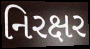
નિરક્ષર